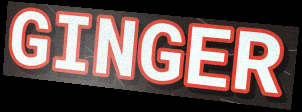
GINGER